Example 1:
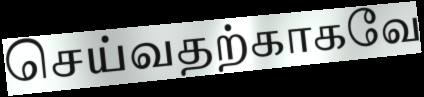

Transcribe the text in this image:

செய்வதற்காகவே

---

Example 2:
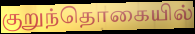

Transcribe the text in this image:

குறுந்தொகையில்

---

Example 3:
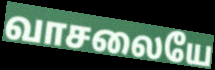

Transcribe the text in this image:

வாசலையே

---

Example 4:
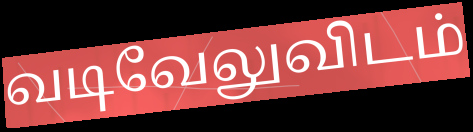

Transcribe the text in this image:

வடிவேலுவிடம்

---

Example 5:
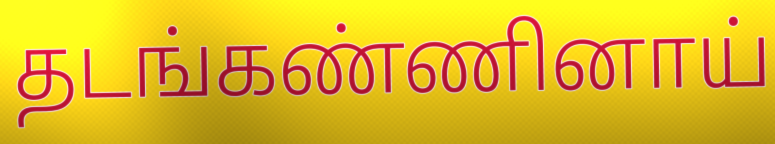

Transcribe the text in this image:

தடங்கண்ணினாய்